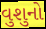
વુશુનો